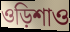
ওড়িশাও